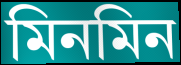
মিনমিন